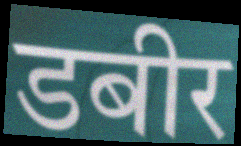
डबीर